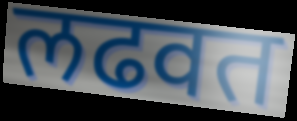
लढवत